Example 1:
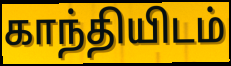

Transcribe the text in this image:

காந்தியிடம்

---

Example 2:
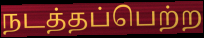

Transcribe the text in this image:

நடத்தப்பெற்ற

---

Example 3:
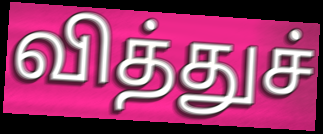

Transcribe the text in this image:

வித்துச்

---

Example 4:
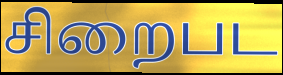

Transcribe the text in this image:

சிறைபட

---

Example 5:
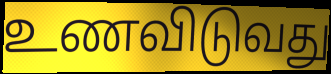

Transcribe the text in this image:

உணவிடுவது